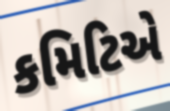
કમિટિએ